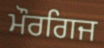
ਮੌਰਗਿਜ